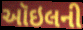
ઑઇલની